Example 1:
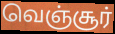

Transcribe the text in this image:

வெஞ்சூர்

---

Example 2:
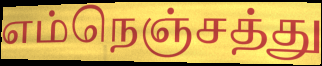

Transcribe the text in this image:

எம்நெஞ்சத்து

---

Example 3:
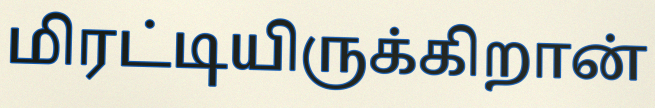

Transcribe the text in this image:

மிரட்டியிருக்கிறான்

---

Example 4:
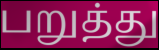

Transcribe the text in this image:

பறுத்து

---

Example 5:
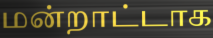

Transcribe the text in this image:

மன்றாட்டாக